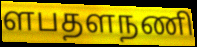
ளபதளநணி